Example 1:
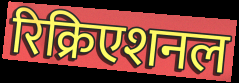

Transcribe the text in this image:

रिक्रिएशनल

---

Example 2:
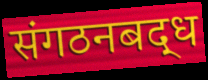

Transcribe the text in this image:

संगठनबद्ध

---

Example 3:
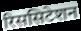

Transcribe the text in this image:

रिससिटेशन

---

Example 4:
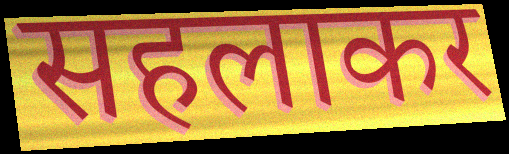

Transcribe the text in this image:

सहलाकर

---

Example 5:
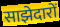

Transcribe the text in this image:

साझेदारों